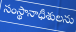
సంస్థానాధీశులను